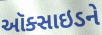
ઑક્સાઇડને